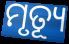
ମୃତ୍ୟୂ